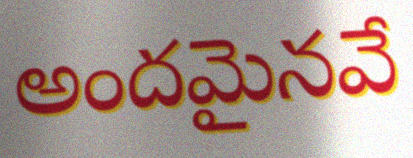
అందమైనవే